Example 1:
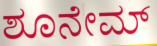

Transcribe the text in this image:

ಶೂನೇಮ್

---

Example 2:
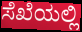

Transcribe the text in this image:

ಸೆಖೆಯಲ್ಲಿ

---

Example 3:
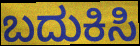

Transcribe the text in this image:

ಬದುಕಿಸಿ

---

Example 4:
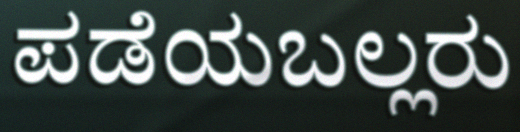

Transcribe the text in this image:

ಪಡೆಯಬಲ್ಲರು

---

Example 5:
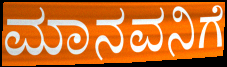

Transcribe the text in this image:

ಮಾನವನಿಗೆ